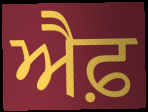
ਐਫ਼